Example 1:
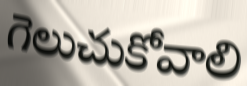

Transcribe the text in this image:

గెలుచుకోవాలి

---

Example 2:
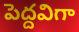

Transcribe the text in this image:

పెద్దవిగా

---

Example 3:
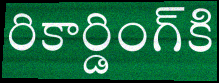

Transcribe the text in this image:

రికార్డింగ్‌కి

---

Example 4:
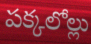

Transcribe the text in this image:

పక్కలోల్లు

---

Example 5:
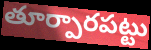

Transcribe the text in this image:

తూర్పారపట్టు